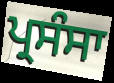
ਪ੍ਰਸੰਸਾ